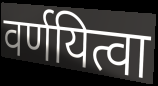
वर्णयित्वा